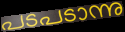
പടപടാന്നു